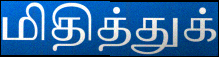
மிதித்துக்